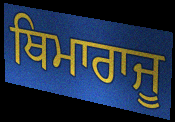
ਥਿਮਾਰਾਜੂ